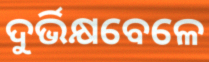
ଦୁର୍ଭିକ୍ଷବେଳେ